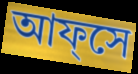
আফ্সে